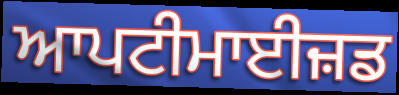
ਆਪਟੀਮਾਈਜ਼ਡ